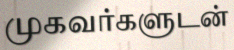
முகவர்களுடன்